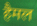
हैमल